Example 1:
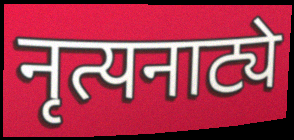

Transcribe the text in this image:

नृत्यनाट्ये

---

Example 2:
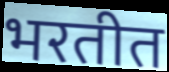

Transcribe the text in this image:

भरतीत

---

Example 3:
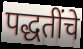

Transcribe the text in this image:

पद्धतींचे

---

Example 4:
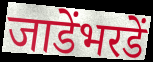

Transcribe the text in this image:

जाडेंभरडें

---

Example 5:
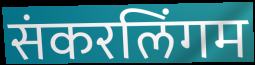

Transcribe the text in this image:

संकरलिंगम